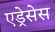
एड्रेसेस